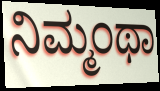
ನಿಮ್ಮಂಥಾ